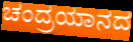
ಚಂದ್ರಯಾನದ